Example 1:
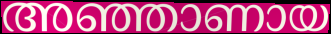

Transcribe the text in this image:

അഞ്ഞാണായ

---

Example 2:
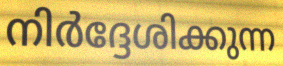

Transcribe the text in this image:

നിർദ്ദേശിക്കുന്ന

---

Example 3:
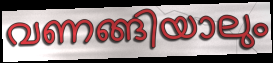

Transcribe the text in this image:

വണങ്ങിയാലും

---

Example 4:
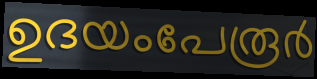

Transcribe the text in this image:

ഉദയംപേരൂർ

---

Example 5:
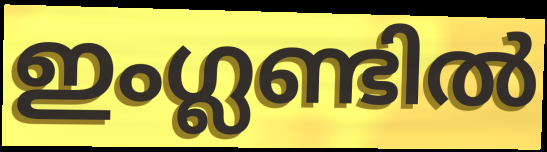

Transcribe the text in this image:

ഇംഗ്ലണ്ടിൽ